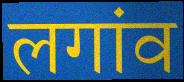
लगांव